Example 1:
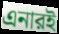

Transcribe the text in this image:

এনারই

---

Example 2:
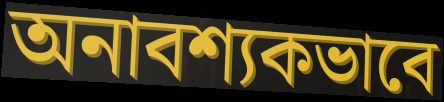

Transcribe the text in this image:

অনাবশ্যকভাবে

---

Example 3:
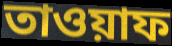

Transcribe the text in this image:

তাওয়াফ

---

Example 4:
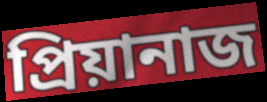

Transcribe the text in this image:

প্রিয়ানাজ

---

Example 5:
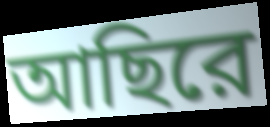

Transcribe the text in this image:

আছিরে